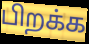
பிறக்க